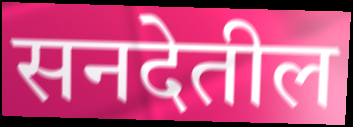
सनदेतील